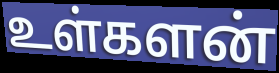
உள்களன்